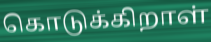
கொடுக்கிறாள்